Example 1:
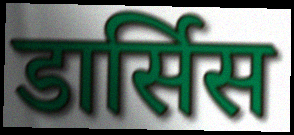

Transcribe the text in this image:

डार्सिस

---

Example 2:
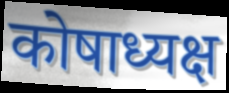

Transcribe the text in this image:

कोषाध्यक्ष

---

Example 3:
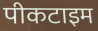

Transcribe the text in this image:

पीकटाइम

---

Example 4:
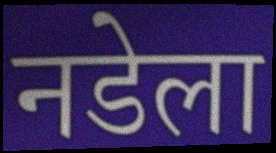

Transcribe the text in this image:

नडेला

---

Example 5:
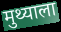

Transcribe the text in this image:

मुथ्याला